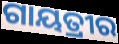
ଗାୟତ୍ରୀର